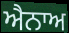
ਐਨਾਅ